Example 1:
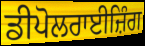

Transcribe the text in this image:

ਡੀਪੋਲਰਾਈਜ਼ਿੰਗ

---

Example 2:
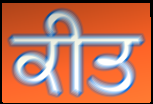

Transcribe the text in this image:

ਕੀਤ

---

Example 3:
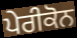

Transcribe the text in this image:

ਪੇਰੀਕੋਨ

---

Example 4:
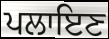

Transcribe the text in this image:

ਪਲਾਇਣ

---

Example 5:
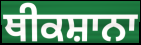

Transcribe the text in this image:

ਥੀਕਸ਼ਾਨਾ